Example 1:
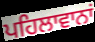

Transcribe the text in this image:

ਪਹਿਲਾਵਾਨਾਂ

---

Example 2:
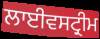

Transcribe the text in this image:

ਲਾਈਵਸਟ੍ਰੀਮ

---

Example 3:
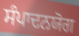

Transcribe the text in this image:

ਸੰਪਾਦਨਯੋਗ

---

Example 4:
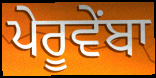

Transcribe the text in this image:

ਪੇਰੂਵੇਂਬਾ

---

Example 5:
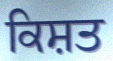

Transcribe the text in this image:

ਕਿਸ਼ਤ